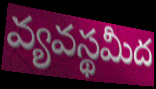
వ్యవస్థమీద